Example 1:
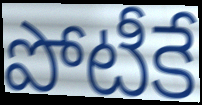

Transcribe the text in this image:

పోటీకే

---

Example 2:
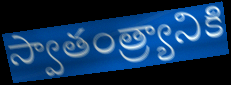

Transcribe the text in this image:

స్వాతంత్ర్యానికి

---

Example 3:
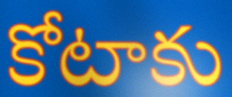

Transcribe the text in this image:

కోటాకు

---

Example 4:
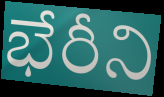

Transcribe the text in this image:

భేరీని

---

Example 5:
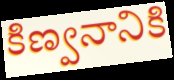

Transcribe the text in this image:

కిణ్వనానికి